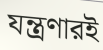
যন্ত্রণারই